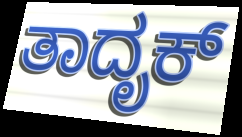
ತಾದೃಕ್